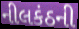
નીલકંઠની